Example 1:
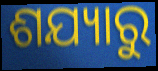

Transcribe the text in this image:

ଶଯ୍ୟାରୁ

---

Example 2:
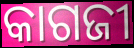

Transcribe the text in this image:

କାଗଜୀ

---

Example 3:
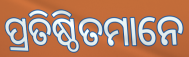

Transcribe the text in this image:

ପ୍ରତିଷ୍ଠିତମାନେ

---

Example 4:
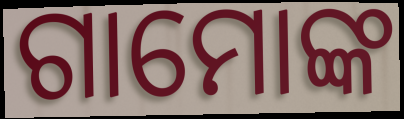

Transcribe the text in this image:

ଗାମୋଙ୍କ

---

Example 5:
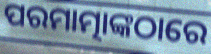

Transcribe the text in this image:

ପରମାତ୍ମାଙ୍କଠାରେ